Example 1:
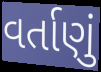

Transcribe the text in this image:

વર્તાણું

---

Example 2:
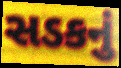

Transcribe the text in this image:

સડકનું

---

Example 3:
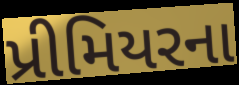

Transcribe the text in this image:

પ્રીમિયરના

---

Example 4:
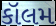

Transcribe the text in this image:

કૉલમ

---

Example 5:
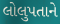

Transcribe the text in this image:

લોલુપતાને